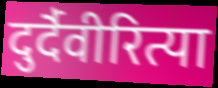
दुर्दैवीरित्या